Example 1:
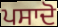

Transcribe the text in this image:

ਪਸਾਦੋ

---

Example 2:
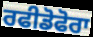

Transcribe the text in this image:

ਰਫੀਡੋਫੋਰਾ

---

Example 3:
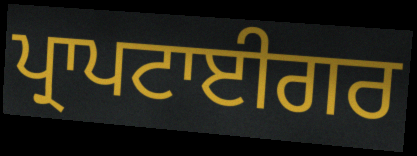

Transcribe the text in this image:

ਪ੍ਰਾਪਟਾਈਗਰ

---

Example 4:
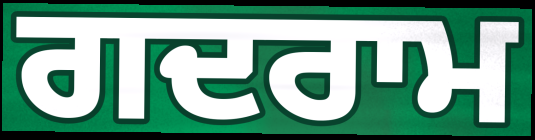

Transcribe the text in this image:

ਗਦਰਾਮ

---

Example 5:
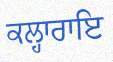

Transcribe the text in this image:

ਕਲ੍ਹਾਰਾਇ